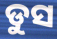
ଡୁସ